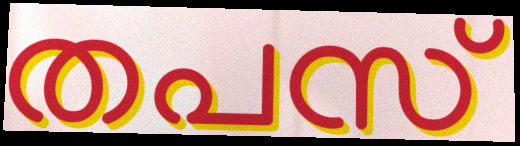
തപസ്